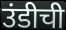
उंडीची